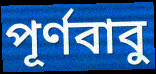
পূর্ণবাবু